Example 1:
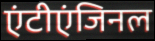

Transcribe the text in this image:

एंटीएंजिनल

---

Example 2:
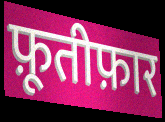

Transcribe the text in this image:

फ़ूतीफ़ार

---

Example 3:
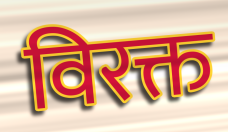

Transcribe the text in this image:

विरक्त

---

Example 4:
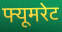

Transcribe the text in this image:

फ्यूमरेट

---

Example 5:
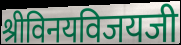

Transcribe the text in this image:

श्रीविनयविजयजी